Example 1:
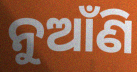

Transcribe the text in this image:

ନୁଆଁଣି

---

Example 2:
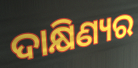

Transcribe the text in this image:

ଦାକ୍ଷିଣ୍ୟର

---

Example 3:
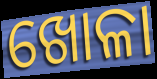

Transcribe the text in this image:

ଖୋଳା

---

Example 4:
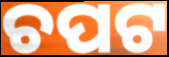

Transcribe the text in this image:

ଚପଟ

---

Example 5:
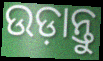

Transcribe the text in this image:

ଉଡ଼ାନ୍ତୁ